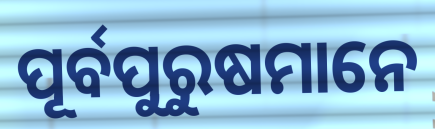
ପୂର୍ବପୁରୁଷମାନେ